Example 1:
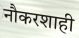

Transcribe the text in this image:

नौकरशाही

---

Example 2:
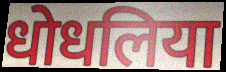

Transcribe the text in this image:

धोधलिया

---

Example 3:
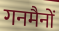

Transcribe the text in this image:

गनमैनों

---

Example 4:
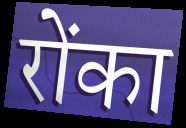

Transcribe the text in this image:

रोंका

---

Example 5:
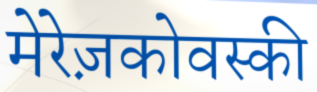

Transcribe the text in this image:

मेरेज़कोवस्की